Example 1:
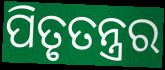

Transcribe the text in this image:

ପିତୃତନ୍ତ୍ରର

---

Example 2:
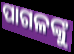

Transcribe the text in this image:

ପାଗଳଙ୍କୁ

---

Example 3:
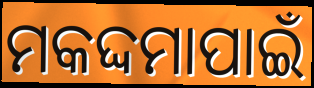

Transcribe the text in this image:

ମକଦ୍ଦମାପାଇଁ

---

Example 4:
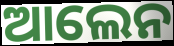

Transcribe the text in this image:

ଆଲେନ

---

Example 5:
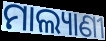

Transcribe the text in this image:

ମାଲ୍ୟାଣୀ